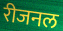
रीजनल